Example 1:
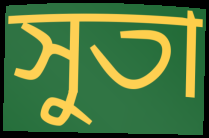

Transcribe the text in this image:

সুতা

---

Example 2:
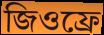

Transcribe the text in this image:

জিওফ্ৰে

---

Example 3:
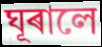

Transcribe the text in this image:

ঘূৰালে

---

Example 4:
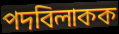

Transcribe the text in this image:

পদবিলাকক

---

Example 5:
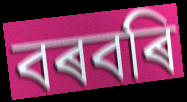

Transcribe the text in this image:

বৰবৰি